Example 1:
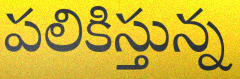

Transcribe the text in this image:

పలికిస్తున్న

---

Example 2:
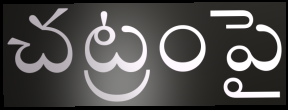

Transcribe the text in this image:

చట్రంపై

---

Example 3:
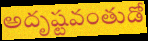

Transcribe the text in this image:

అదృష్టవంతుడో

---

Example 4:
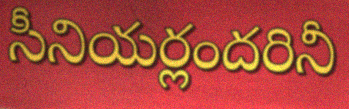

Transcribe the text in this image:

సీనియర్లందరినీ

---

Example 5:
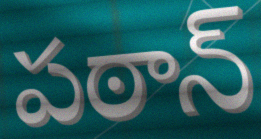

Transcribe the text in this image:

పఠాన్